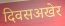
दिवसअखेर